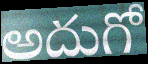
అదుగో